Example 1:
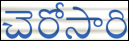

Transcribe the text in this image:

చెరోసారి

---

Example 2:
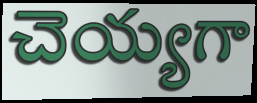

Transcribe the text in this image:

చెయ్యగా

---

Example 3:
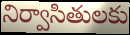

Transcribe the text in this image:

నిర్వాసితులకు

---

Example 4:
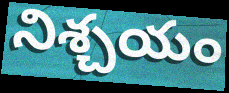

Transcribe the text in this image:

నిశ్చయం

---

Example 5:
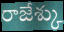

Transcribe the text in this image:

రాజేశ్కు